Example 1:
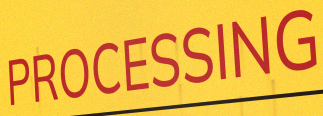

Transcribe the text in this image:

PROCESSING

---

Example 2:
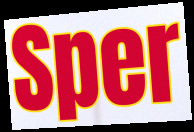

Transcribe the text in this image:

Sper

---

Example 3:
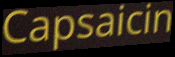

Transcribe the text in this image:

Capsaicin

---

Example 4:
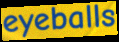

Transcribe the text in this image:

eyeballs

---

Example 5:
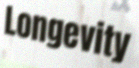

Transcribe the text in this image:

Longevity